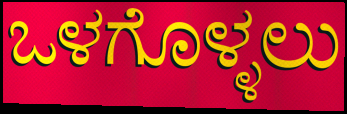
ಒಳಗೊಳ್ಳಲು